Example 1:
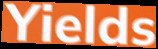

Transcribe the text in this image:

Yields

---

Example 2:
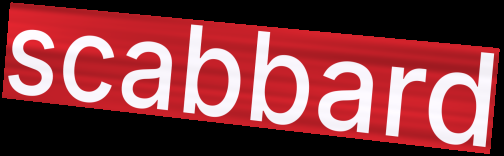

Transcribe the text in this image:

scabbard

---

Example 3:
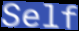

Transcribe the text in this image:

Self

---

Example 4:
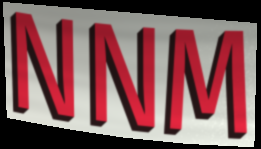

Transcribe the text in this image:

NNM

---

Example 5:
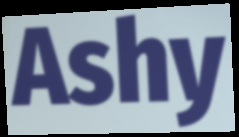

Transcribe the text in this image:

Ashy